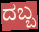
ದಬ್ಬ